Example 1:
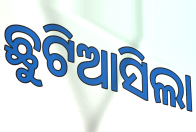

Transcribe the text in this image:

ଛୁଟିଆସିଲା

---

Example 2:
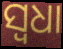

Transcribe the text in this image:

ସ୍ୱଧା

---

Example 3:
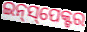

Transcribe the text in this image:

ଇନ୍‍ସ୍‌ପେକ୍ଟର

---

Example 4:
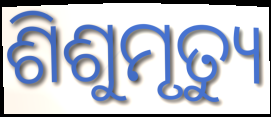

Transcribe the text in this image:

ଶିଶୁମୃତ୍ୟୁ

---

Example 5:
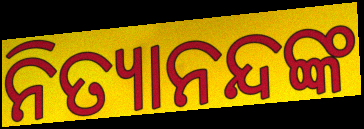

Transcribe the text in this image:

ନିତ୍ୟାନନ୍ଦଙ୍କ